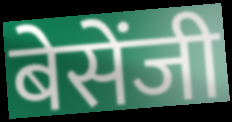
बेसेंजी